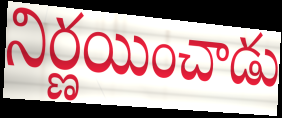
నిర్ణయించాడు